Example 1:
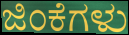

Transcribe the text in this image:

ಜಿಂಕೆಗಳು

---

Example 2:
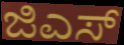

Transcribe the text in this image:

ಜಿಎಸ್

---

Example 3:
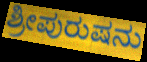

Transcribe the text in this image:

ಶ್ರೀಪುರುಷನು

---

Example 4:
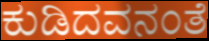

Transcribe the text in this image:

ಕುಡಿದವನಂತೆ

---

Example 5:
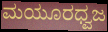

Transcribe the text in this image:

ಮಯೂರಧ್ವಜ